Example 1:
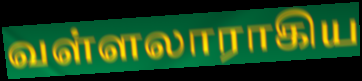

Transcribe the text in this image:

வள்ளலாராகிய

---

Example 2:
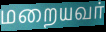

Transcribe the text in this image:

மறையவர்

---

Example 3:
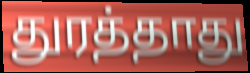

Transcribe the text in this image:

துரத்தாது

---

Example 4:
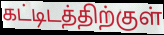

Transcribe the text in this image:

கட்டிடத்திற்குள்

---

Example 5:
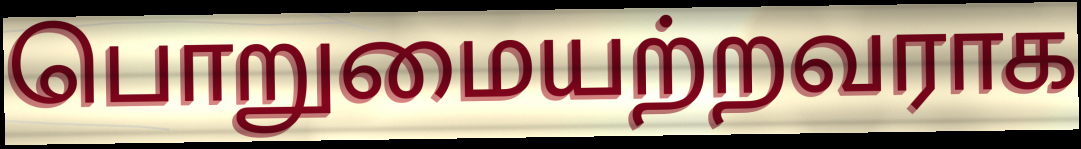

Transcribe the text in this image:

பொறுமையற்றவராக